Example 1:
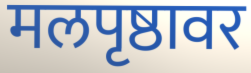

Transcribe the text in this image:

मलपृष्ठावर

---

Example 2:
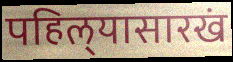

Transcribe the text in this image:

पहिल्यासारखं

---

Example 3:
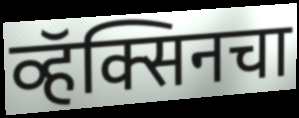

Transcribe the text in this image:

व्हॅक्सिनचा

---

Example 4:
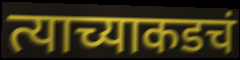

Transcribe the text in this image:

त्याच्याकडचं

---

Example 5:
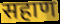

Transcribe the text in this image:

सहाण